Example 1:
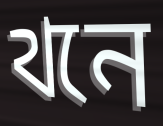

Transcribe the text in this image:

থনে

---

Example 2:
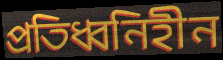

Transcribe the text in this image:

প্রতিধ্বনিহীন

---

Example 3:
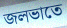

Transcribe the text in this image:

জলভাতে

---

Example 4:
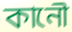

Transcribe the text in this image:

কানৌ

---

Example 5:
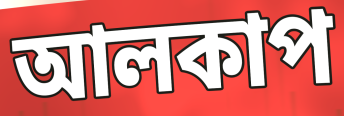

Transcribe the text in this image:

আলকাপ